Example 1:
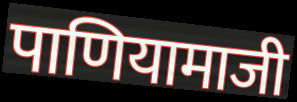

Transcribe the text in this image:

पाणियामाजी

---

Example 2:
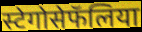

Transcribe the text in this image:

स्टेगोसेफॅलिया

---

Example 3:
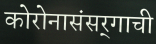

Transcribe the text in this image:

कोरोनासंसर्गाची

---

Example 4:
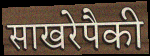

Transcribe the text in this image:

साखरेपैकी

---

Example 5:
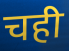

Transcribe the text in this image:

चही